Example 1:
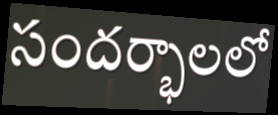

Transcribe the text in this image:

సందర్భాలలో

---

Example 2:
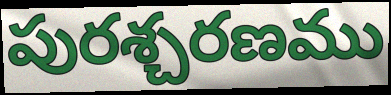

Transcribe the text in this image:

పురశ్చరణము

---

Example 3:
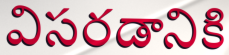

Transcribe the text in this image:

విసరడానికి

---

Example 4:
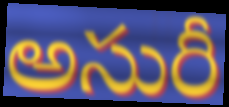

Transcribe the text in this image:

అసురీ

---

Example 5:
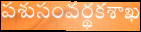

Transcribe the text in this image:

పశుసంవర్థకశాఖ